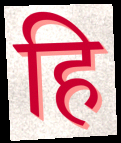
हि